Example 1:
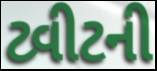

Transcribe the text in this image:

ટ્વીટની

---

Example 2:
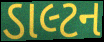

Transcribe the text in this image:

ડાલ્ટન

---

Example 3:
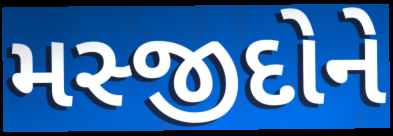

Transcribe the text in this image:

મસ્જીદોને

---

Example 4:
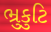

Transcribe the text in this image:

ભ્રુકુટિ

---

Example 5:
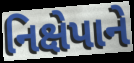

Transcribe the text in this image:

નિક્ષેપાને